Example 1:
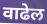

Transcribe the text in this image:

वाढेल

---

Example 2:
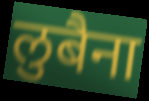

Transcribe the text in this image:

लुबैना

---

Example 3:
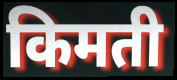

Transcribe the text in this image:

किमती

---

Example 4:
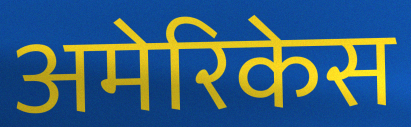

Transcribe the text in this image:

अमेरिकेस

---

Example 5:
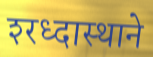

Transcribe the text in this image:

श्रध्दास्थाने